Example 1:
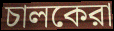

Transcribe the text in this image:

চালকেরা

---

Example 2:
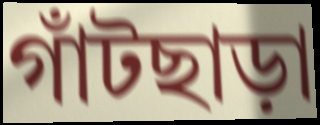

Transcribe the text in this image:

গাঁটছাড়া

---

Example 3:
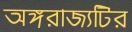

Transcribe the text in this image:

অঙ্গরাজ্যটির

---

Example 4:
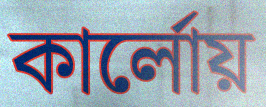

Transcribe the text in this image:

কার্লোয়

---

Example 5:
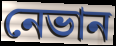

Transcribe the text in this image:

নেভান